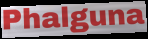
Phalguna